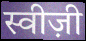
स्वीज़ी